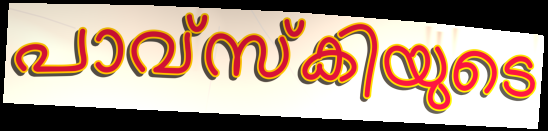
പാവ്സ്കിയുടെ